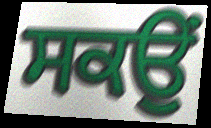
ਸਕਉਂ